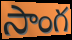
సాంగ